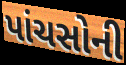
પાંચસોની